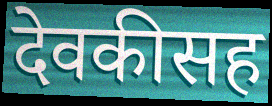
देवकीसह